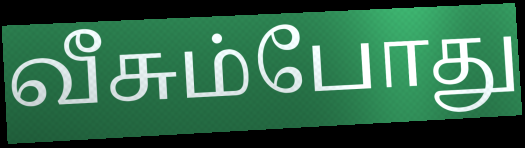
வீசும்போது